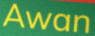
Awan